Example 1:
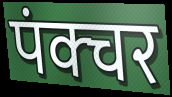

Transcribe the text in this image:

पंक्‍चर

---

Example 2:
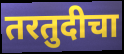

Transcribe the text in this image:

तरतुदीचा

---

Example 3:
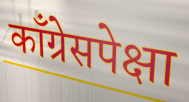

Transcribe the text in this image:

काँग्रेसपेक्षा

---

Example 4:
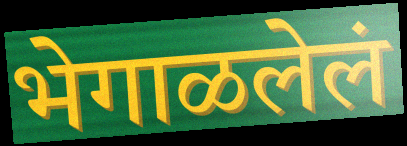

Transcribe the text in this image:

भेगाळलेलं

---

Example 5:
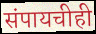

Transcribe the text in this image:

संपायचीही